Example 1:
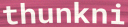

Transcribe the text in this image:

thunkni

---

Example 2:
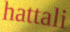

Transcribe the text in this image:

hattali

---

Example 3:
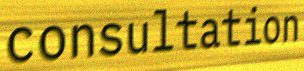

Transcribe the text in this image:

consultation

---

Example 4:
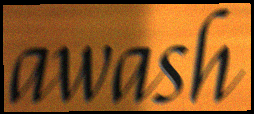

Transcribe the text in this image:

awash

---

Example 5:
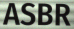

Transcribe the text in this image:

ASBR